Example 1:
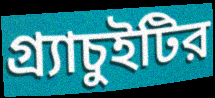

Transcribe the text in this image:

গ্র্যাচুইটির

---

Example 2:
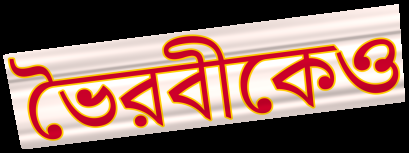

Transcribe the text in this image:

ভৈরবীকেও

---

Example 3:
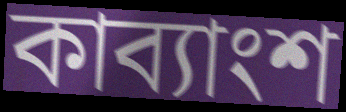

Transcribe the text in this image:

কাব্যাংশ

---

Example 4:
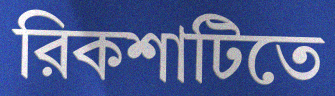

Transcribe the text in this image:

রিকশাটিতে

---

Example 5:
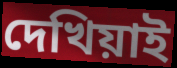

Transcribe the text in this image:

দেখিয়াই